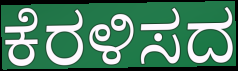
ಕೆರಳಿಸದ